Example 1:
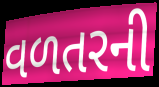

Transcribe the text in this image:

વળતરની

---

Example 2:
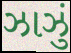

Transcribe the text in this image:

ઝાઝું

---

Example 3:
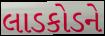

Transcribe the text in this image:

લાડકોડને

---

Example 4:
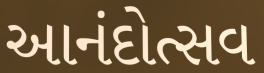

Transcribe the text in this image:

આનંદોત્સવ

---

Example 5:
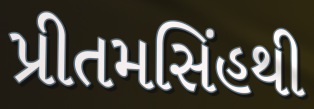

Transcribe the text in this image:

પ્રીતમસિંહથી